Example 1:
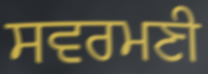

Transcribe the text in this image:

ਸਵਰਮਣੀ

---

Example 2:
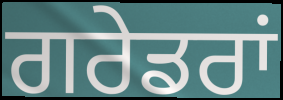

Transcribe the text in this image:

ਗਰੇਡਰਾਂ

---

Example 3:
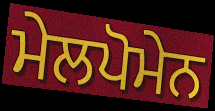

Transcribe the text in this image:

ਮੇਲਪੋਮੇਨ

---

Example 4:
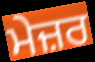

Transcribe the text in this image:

ਮੇਜ਼ਰ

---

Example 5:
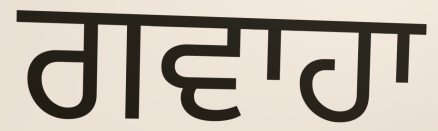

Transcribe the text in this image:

ਗਵਾਹਾ